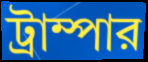
ট্রাম্পার